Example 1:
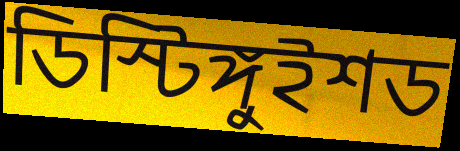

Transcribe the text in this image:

ডিস্টিঙ্গুইশড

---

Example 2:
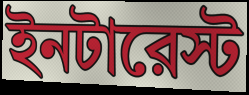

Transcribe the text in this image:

ইনটারেস্ট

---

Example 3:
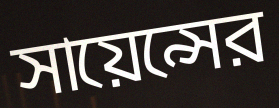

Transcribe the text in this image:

সায়েন্সের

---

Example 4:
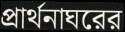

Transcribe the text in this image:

প্রার্থনাঘরের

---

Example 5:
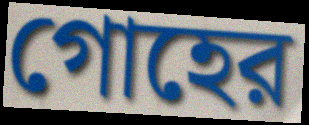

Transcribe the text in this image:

গোহের